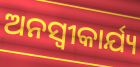
ଅନସ୍ୱୀକାର୍ଯ୍ୟ